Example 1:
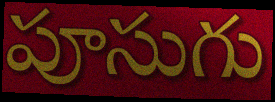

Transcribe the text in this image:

పూసుగు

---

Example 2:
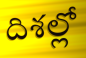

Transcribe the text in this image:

దిశల్లో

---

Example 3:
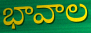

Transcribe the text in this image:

భావాల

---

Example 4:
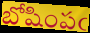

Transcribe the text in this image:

బోషింపఁ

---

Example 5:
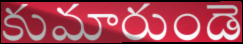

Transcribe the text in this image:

కుమారుండె